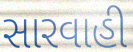
સારવાહી